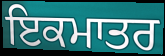
ਇਕਮਾਤਰ